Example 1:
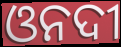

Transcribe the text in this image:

ଓନଦୀ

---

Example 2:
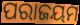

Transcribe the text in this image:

ପରାଜୟମ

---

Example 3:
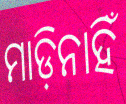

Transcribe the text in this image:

ମାଡ଼ିନାହିଁ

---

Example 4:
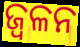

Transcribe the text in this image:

ଜ୍ଵଳନ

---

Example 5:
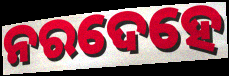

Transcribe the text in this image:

ନରଦେହେ